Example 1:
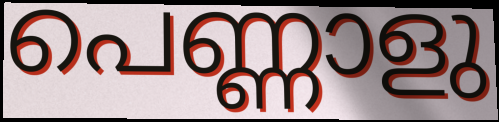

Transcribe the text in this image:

പെണ്ണാളു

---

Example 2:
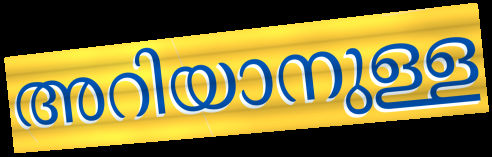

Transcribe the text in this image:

അറിയാനുള്ള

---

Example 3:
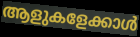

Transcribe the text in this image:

ആളുകളേക്കാൾ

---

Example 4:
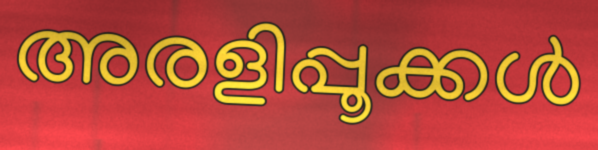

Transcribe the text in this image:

അരളിപ്പൂക്കൾ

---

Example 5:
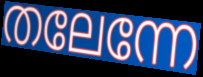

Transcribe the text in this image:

തലേന്നേ